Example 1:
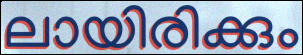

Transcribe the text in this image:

ലായിരിക്കും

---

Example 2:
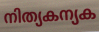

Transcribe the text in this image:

നിത്യകന്യക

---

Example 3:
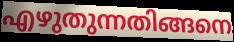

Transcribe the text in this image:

എഴുതുന്നതിങ്ങനെ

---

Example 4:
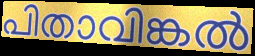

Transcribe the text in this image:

പിതാവിങ്കൽ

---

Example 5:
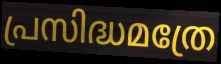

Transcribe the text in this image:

പ്രസിദ്ധമത്രേ